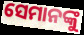
ସେମାନଙ୍କୁ